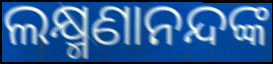
ଲକ୍ଷ୍ମଣାନନ୍ଦଙ୍କ